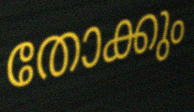
തോക്കും